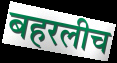
बहरलीच